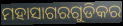
ମହାସାଗରଗୁଡିକର